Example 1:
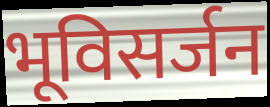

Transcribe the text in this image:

भूविसर्जन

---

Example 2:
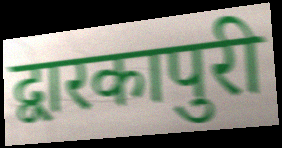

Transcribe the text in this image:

द्वारकापुरी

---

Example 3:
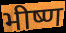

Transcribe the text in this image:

भीष्ण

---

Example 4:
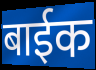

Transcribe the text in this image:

बाईक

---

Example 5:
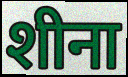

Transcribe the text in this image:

शीना